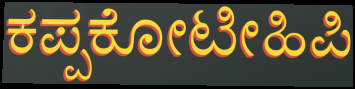
ಕಪ್ಪಕೋಟೀಹಿಪಿ